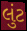
લુંટ